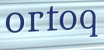
ortoq